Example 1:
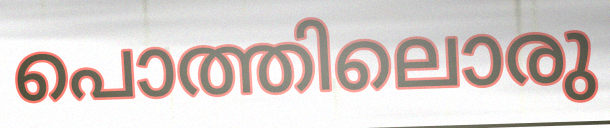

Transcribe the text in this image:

പൊത്തിലൊരു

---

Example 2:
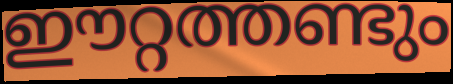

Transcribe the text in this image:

ഈറ്റത്തണ്ടും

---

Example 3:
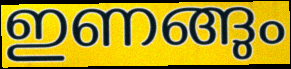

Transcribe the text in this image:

ഇണങ്ങും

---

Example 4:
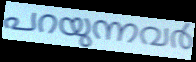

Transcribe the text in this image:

പറയുന്നവർ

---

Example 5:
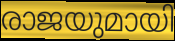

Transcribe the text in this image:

രാജയുമായി